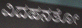
ವಿದಹನತೋ